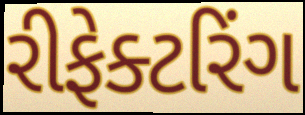
રીફેક્ટરિંગ